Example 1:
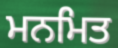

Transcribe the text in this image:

ਮਨਮਿਤ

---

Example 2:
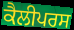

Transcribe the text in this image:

ਕੈਲੀਪਰਸ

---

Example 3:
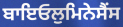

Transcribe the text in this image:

ਬਾਇਓਲੁਮਿਨੇਸੈਂਸ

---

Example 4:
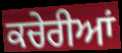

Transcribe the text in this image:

ਕਚੇਰੀਆਂ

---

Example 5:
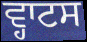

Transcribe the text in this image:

ਵ੍ਹਾਟਸ